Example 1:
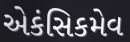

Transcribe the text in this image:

એકંસિકમેવ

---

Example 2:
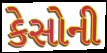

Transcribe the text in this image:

કેસોની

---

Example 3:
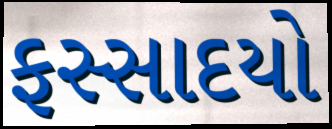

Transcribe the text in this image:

ફસ્સાદયો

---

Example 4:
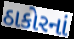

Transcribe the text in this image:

ઠાકોરનાં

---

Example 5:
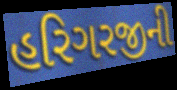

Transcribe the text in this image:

હરિગરજીની